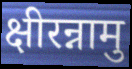
क्षीरन्नामु